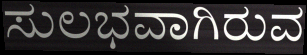
ಸುಲಭವಾಗಿರುವ